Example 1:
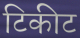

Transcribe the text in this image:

टिकीट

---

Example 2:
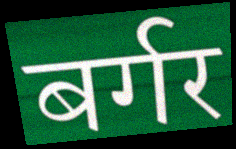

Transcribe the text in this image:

बर्गर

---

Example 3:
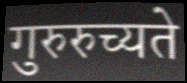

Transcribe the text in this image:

गुरुरुच्यते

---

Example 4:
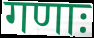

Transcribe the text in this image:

गणाः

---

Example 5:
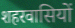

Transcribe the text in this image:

शहरवासियों